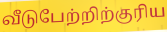
வீடுபேற்றிற்குரிய